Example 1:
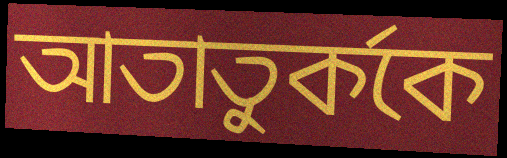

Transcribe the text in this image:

আতাতুর্ককে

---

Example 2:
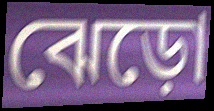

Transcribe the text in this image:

ঝেড়ো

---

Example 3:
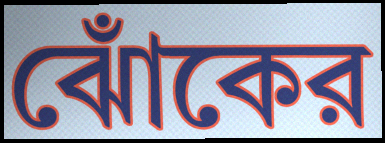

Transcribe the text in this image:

ঝোঁকের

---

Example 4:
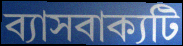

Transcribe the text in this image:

ব্যাসবাক্যটি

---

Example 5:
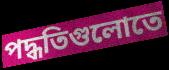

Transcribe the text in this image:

পদ্ধতিগুলোতে